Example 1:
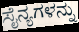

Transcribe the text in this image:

ಸೈನ್ಯಗಳನ್ನು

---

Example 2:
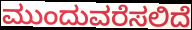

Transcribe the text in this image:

ಮುಂದುವರೆಸಲಿದೆ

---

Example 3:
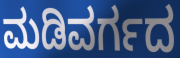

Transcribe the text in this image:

ಮಡಿವರ್ಗದ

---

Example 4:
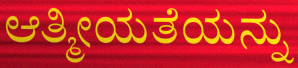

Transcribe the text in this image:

ಆತ್ಮೀಯತೆಯನ್ನು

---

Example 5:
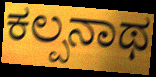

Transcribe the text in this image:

ಕಲ್ಪನಾಥ